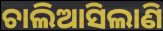
ଚାଲିଆସିଲାଣି